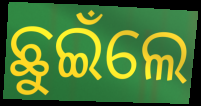
ଛୁଇଁଲେ